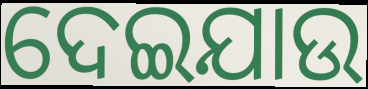
ଦେଇଯାଉ